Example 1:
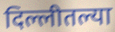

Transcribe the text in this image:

दिल्लीतल्या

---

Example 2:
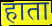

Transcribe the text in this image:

हाता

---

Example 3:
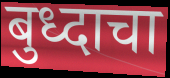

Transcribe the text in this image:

बुध्दाचा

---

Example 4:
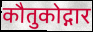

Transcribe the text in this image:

कौतुकोद्गार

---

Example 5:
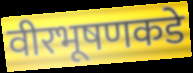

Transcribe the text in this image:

वीरभूषणकडे